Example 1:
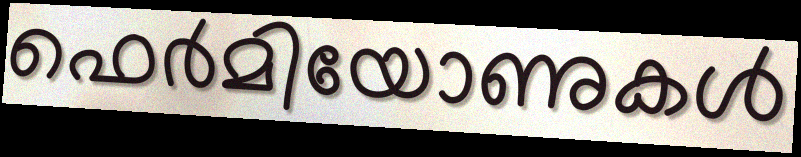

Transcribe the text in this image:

ഫെർമിയോണുകൾ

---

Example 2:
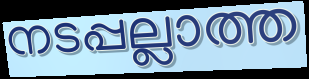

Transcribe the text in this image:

നടപ്പല്ലാത്ത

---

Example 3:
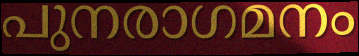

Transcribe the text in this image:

പുനരാഗമനം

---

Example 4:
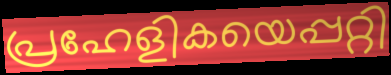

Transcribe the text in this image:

പ്രഹേളികയെപ്പറ്റി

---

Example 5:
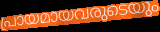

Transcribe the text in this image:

പ്രായമായവരുടെയും